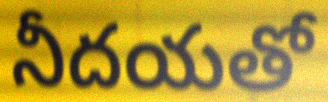
నీదయతో